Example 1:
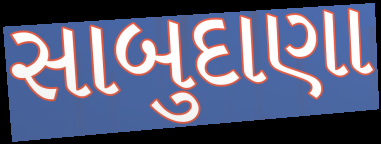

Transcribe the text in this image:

સાબુદાણા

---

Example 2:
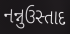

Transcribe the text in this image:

નન્નુઉસ્તાદ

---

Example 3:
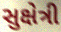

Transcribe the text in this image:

સુક્ષેત્રી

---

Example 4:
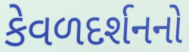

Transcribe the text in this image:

કેવળદર્શનનો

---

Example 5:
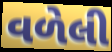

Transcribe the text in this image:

વળેલી